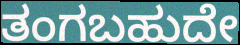
ತಂಗಬಹುದೇ